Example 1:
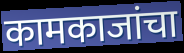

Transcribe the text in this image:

कामकाजांचा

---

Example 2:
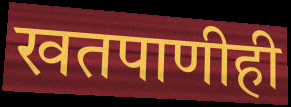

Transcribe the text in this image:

खतपाणीही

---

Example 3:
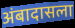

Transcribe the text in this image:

अंबादासला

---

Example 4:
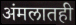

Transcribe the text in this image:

अंमलातही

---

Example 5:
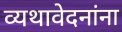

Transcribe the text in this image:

व्यथावेदनांना